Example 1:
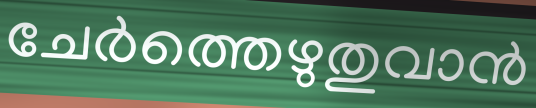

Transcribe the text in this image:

ചേർത്തെഴുതുവാൻ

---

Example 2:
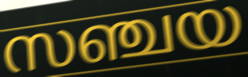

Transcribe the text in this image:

സഞ്ചയ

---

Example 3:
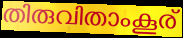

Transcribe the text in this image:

തിരുവിതാംകൂര്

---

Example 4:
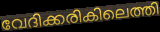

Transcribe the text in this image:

വേദിക്കരികിലെത്തി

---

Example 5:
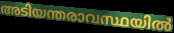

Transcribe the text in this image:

അടിയന്തരാവസ്ഥയിൽ